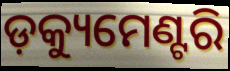
ଡ଼କ୍ୟୁମେଣ୍ଟରି